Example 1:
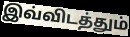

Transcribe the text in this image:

இவ்விடத்தும்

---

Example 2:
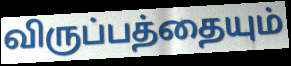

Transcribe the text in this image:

விருப்பத்தையும்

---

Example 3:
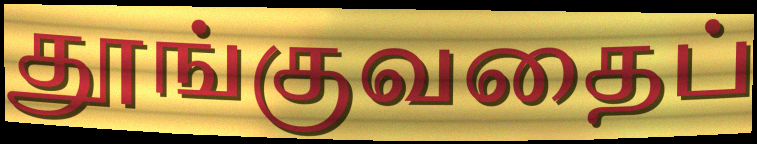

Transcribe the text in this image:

தூங்குவதைப்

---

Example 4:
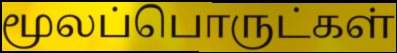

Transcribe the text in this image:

மூலப்பொருட்கள்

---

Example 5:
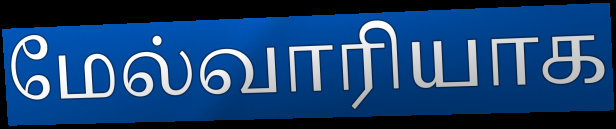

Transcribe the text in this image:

மேல்வாரியாக